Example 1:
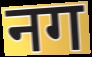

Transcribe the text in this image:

नग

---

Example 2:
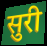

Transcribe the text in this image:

सुरी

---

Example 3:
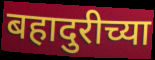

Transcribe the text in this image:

बहादुरीच्या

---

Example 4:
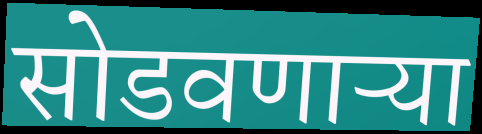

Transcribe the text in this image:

सोडवणाऱ्या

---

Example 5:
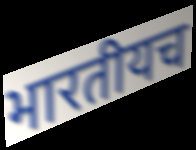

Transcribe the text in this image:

भारतीयच